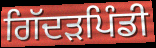
ਗਿੱਦੜਪਿੰਡੀ